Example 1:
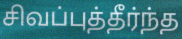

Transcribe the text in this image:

சிவப்புத்தீர்ந்த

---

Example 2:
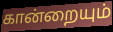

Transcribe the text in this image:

கான்றையும்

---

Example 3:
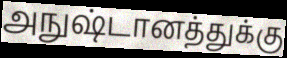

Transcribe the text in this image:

அநுஷ்டானத்துக்கு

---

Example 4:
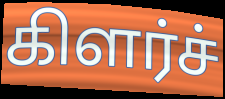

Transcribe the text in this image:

கிளர்ச்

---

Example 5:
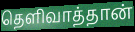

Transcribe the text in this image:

தெளிவாத்தான்